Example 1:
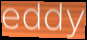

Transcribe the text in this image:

eddy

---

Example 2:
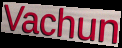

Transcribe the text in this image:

Vachun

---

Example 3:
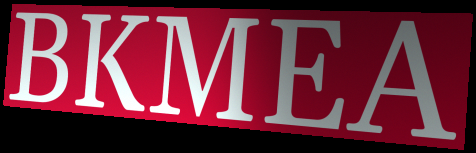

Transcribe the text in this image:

BKMEA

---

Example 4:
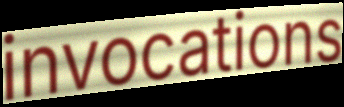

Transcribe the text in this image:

invocations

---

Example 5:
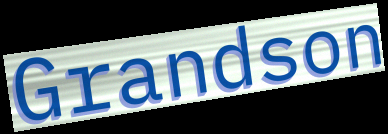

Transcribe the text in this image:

Grandson